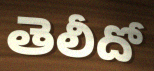
తెలీదో